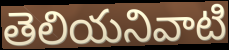
తెలియనివాటి